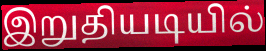
இறுதியடியில்